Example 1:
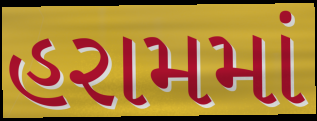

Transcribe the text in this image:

હરામમાં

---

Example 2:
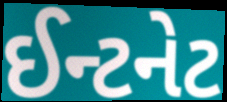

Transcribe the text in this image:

ઈન્ટનેટ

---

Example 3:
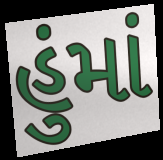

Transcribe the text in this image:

હુંમાં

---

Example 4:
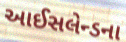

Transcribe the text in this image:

આઈસલેન્ડના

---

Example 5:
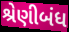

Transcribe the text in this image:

શ્રેણીબંધ